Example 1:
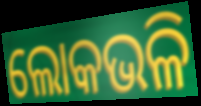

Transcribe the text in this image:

ଲୋକଭଳି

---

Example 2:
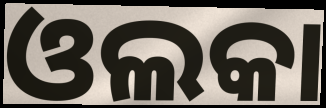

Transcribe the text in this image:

ଓଲକା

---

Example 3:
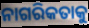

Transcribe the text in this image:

ନାଗରିକତାକୁ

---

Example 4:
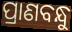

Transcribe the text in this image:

ପ୍ରାଣବନ୍ଧୁ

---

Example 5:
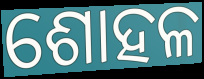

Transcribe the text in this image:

ଶୋହଳ